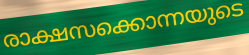
രാക്ഷസക്കൊന്നയുടെ